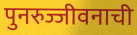
पुनरुज्जीवनाची